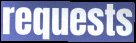
requests